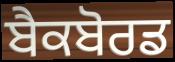
ਬੈਕਬੋਰਡ